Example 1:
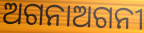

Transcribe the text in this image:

ଅଗନାଅଗନୀ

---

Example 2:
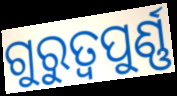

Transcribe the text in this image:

ଗୁରୁତ୍ୱପୁର୍ଣ୍ଣ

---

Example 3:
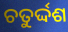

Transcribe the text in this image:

ଚତୁର୍ଦ୍ଦଶ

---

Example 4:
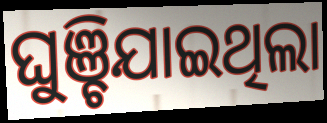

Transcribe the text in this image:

ଘୁଞ୍ଚିଯାଇଥିଲା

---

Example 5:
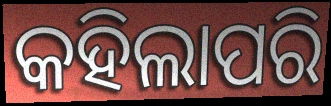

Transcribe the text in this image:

କହିଲାପରି